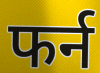
फर्न